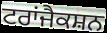
ਟਰਾਂਜੈਕਸ਼ਨ